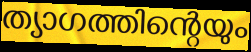
ത്യാഗത്തിന്റെയും